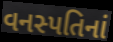
વનસ્પતિનાં